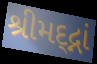
શ્રીમદ્દ્નાં